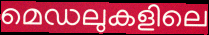
മെഡലുകളിലെ